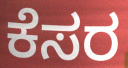
ಕೆಸರ